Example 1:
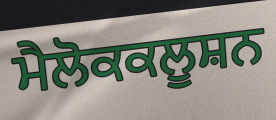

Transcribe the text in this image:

ਮੈਲੋਕਕਲੂਸ਼ਨ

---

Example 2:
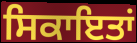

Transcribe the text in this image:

ਸਿਕਾਇਤਾਂ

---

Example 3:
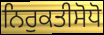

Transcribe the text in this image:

ਨਿਰੁਕਤੀਸੋਧੋ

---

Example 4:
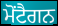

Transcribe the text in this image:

ਮੋਂਟੈਗਨ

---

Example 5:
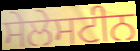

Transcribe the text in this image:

ਸੇਲੇਸਟੀਨ